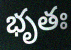
భృతః